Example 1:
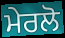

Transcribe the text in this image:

ਮੇਰਲੋ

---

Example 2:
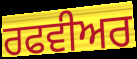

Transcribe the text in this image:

ਰਫਵੀਅਰ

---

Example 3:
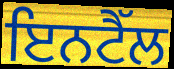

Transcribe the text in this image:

ਇਨਟੈੱਲ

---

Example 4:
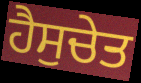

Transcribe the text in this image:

ਹੈਸੁਚੇਤ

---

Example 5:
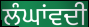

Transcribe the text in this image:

ਲੰਘਾਂਵਦੀ